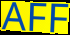
AFF